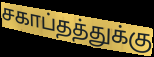
சகாப்தத்துக்கு